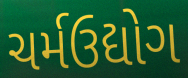
ચર્મઉદ્યોગ